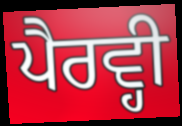
ਪੈਰਵ੍ਹੀ